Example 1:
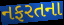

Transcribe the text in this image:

નફરતના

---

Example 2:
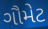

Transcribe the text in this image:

ગૌમેટ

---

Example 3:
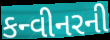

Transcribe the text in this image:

કન્વીનરની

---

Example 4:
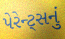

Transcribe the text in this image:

પેરેન્ટ્સનું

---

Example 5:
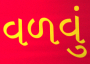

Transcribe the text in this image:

વળવું